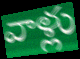
వాళ్లు